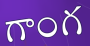
గాంగ